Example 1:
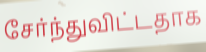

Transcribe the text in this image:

சேர்ந்துவிட்டதாக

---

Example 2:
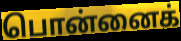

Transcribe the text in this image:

பொன்னைக்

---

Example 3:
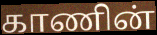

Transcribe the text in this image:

காணின்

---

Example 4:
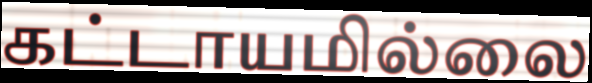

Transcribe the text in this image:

கட்டாயமில்லை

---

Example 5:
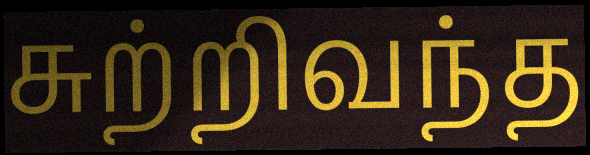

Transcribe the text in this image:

சுற்றிவந்த